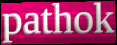
pathok